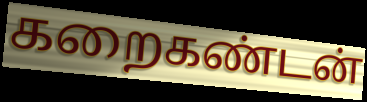
கறைகண்டன்